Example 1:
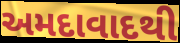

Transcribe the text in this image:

અમદાવાદથી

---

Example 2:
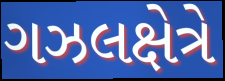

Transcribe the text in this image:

ગઝલક્ષેત્રે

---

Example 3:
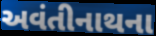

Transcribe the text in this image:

અવંતીનાથના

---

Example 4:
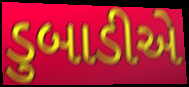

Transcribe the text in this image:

ડુબાડીએ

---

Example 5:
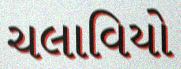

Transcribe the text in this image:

ચલાવિયો